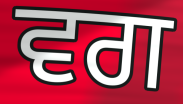
ਵਗ